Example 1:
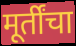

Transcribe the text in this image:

मूर्तींचा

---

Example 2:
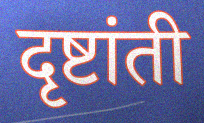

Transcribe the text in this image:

दृष्टांती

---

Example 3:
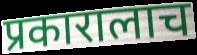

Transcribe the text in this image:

प्रकारालाच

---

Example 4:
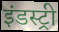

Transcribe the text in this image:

इंडस्ट्री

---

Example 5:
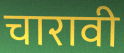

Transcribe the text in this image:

चारावी